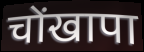
चोंखापा